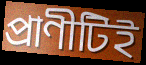
প্রাণীটিই